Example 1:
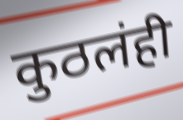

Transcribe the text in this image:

कुठलंही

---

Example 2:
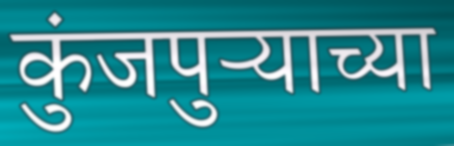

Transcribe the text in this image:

कुंजपुऱ्याच्या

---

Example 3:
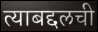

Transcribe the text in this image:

त्याबद्दलची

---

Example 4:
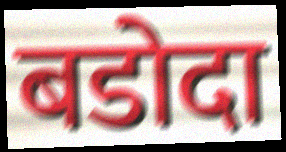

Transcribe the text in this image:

बडोदा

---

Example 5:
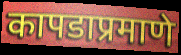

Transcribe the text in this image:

कापडाप्रमाणे